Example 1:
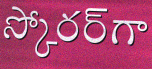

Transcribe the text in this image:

స్కోరర్‌గా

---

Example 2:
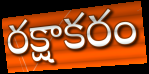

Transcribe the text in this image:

రక్షాకరం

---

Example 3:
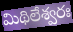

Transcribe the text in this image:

మిథిలేశ్వరః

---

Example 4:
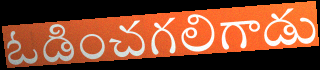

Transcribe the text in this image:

ఓడించగలిగాడు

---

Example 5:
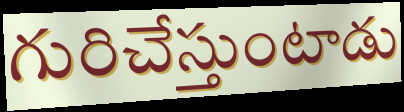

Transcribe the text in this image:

గురిచేస్తుంటాడు